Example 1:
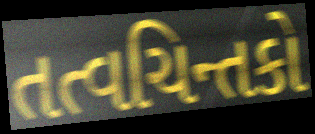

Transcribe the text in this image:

તત્વચિન્તકો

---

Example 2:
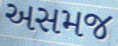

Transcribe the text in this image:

અસમજ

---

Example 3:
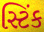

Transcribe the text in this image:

સ્ટિંક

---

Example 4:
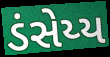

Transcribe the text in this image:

ડંસેય્ય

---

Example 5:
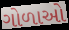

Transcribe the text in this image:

ગોળાઓ